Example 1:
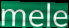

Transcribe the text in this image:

mele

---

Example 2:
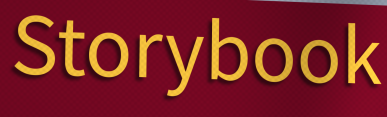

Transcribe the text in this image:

Storybook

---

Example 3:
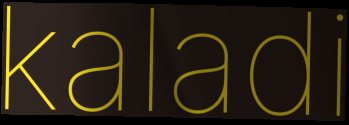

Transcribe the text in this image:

kaladi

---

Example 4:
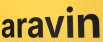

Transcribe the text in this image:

aravin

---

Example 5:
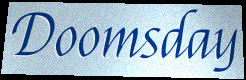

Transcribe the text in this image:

Doomsday